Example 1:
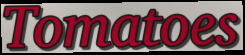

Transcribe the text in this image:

Tomatoes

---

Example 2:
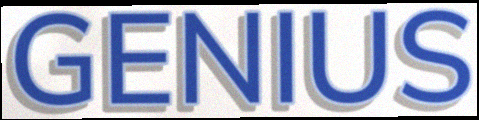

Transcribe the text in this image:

GENIUS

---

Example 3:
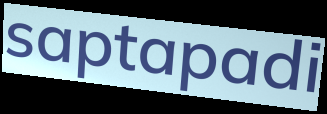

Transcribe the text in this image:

saptapadi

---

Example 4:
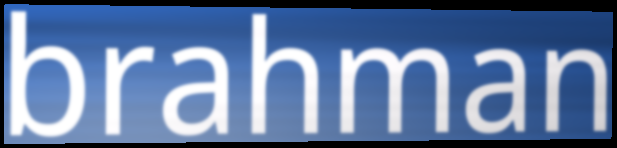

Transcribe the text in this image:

brahman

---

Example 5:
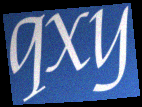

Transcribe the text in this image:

qxy